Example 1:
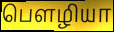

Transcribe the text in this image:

பௌழியா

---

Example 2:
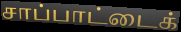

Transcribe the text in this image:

சாப்பாட்டைக்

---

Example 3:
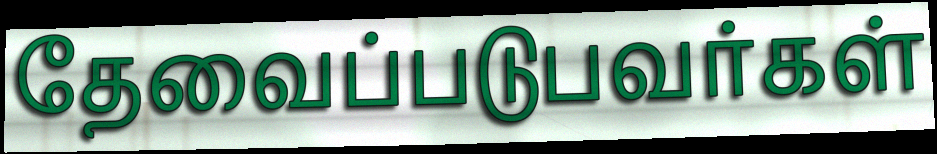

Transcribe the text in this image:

தேவைப்படுபவர்கள்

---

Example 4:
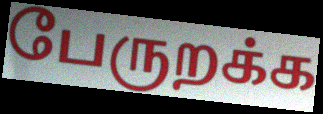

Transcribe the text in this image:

பேருறக்க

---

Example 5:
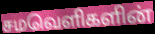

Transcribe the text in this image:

சமவெளிகளின்